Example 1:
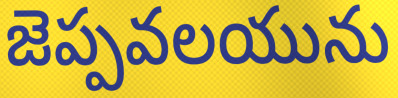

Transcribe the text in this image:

జెప్పవలయును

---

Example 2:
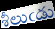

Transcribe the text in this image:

శీలుఁడు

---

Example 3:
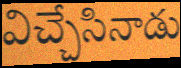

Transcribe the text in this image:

విచ్చేసినాడు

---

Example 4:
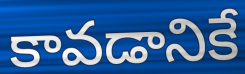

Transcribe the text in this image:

కావడానికే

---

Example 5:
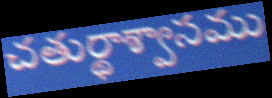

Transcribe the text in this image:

చతుర్థాశ్వాసము